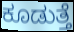
ಕೂಡುತ್ತೆ